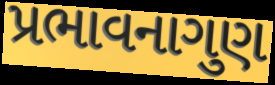
પ્રભાવનાગુણ